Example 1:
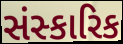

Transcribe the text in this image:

સંસ્કારિક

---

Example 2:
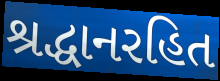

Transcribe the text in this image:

શ્રદ્ધાનરહિત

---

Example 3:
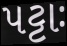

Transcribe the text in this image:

પટ્ટાઃ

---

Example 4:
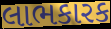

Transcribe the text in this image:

લાભકારક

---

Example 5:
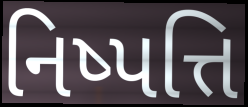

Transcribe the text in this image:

નિષ્પત્તિ